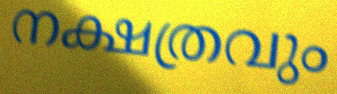
നക്ഷത്രവും